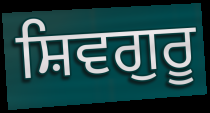
ਸ਼ਿਵਗੁਰੂ